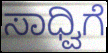
ಸಾಧ್ವಿಗೆ